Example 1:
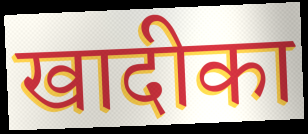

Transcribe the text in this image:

खादीका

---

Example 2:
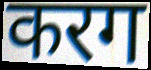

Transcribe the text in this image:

करग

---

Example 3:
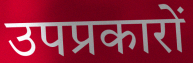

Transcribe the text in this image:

उपप्रकारों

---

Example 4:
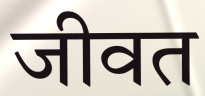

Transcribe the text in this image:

जीवत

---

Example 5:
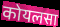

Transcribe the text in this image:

कोयलसा